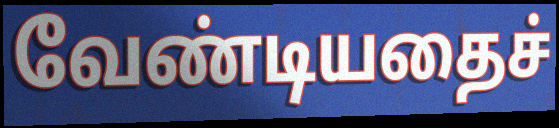
வேண்டியதைச்